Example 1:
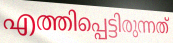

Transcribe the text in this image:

എത്തിപ്പെട്ടിരുന്നത്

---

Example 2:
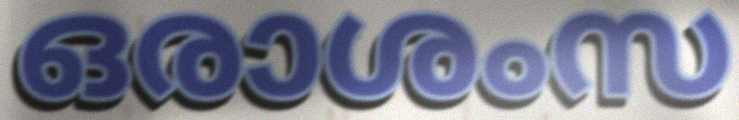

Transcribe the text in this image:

ഒരാശംസ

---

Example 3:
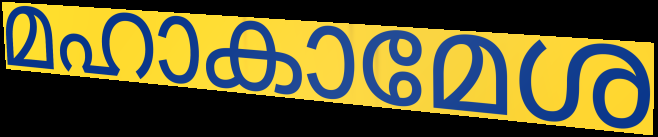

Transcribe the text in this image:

മഹാകാമേശ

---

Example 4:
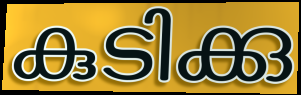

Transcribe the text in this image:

കുടിക്കു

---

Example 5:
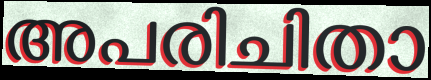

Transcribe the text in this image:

അപരിചിതാ